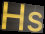
Hs